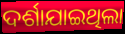
ଦର୍ଶାଯାଇଥିଲା